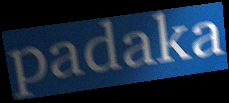
padaka